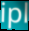
ipl